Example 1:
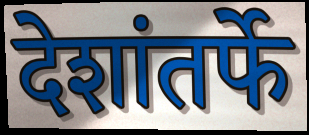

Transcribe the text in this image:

देशांतर्फे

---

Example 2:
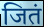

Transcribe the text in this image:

जितं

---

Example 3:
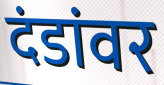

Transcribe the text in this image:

दंडांवर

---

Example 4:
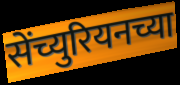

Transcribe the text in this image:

सेंच्युरियनच्या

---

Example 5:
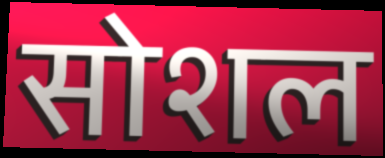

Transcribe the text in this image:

सोशल